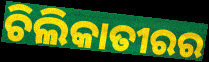
ଚିଲିକାତୀରର